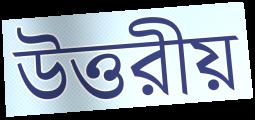
উত্তরীয়